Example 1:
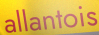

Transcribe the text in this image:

allantois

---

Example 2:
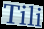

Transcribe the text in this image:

Tili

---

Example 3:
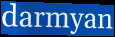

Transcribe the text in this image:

darmyan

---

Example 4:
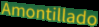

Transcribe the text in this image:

Amontillado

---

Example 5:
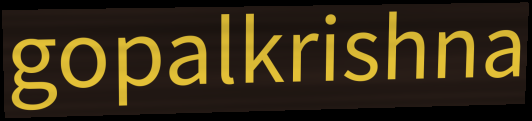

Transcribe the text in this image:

gopalkrishna